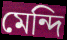
মেন্দি